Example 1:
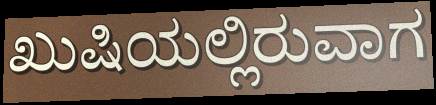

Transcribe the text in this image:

ಖುಷಿಯಲ್ಲಿರುವಾಗ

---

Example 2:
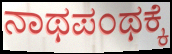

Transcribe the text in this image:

ನಾಥಪಂಥಕ್ಕೆ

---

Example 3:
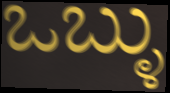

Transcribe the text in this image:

ಒಬ್ಳು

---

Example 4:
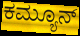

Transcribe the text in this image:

ಕಮ್ಯೂನ್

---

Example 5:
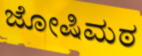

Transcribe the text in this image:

ಜೋಷಿಮಠ